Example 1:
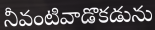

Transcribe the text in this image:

నీవంటివాడొకడును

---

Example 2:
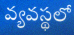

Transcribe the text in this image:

వ్యవస్థలో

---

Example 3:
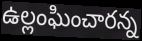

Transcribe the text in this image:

ఉల్లంఘించారన్న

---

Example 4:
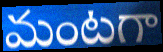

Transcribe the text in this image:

మంటగా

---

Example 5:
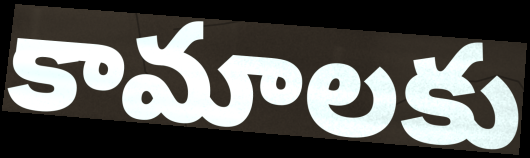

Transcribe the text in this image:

కామాలకు